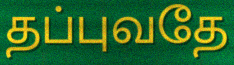
தப்புவதே